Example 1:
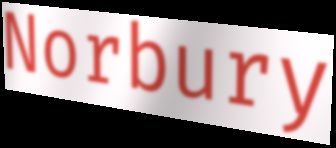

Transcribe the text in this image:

Norbury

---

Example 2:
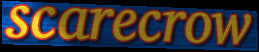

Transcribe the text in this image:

scarecrow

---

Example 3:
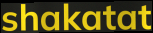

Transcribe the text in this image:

shakatat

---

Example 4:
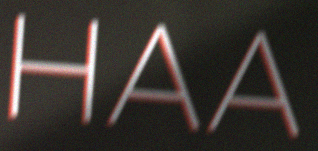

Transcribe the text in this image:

HAA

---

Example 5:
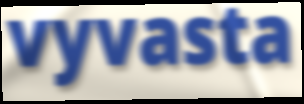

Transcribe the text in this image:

vyvasta